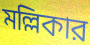
মল্লিকার